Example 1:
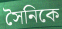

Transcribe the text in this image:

সৈনিকে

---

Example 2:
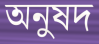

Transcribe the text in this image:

অনুষদ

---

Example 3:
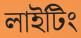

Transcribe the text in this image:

লাইটিং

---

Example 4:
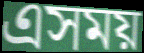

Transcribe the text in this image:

এসময়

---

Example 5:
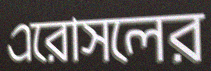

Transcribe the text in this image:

এরোসলের